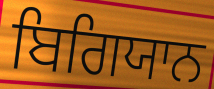
ਬਿਗਿਯਾਨ